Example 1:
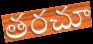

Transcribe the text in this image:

తరచూ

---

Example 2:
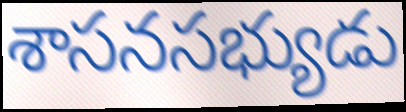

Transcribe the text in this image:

శాసనసభ్యుడు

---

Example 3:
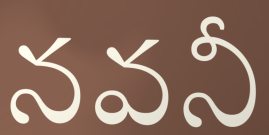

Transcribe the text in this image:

నవనీ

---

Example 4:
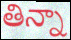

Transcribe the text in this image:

తిన్నా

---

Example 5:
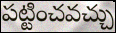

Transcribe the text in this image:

పట్టించవచ్చు